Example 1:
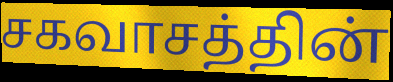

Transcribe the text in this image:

சகவாசத்தின்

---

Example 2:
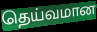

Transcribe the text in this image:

தெய்வமான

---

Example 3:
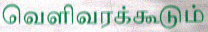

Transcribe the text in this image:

வெளிவரக்கூடும்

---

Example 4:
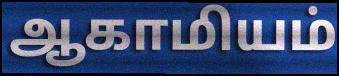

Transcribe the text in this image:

ஆகாமியம்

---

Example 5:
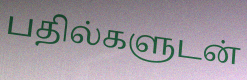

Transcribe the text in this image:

பதில்களுடன்